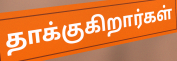
தாக்குகிறார்கள்